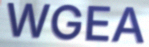
WGEA